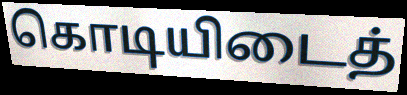
கொடியிடைத்